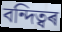
বন্দিত্বৰ